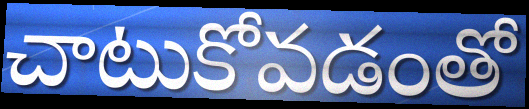
చాటుకోవడంతో